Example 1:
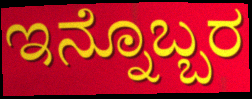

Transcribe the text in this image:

ಇನ್ನೊಬ್ಬರ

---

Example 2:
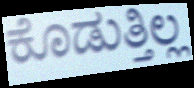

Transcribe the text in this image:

ಕೊಡುತ್ತಿಲ್ಲ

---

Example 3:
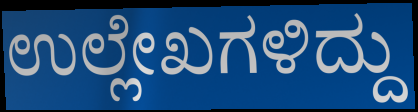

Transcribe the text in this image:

ಉಲ್ಲೇಖಗಳಿದ್ದು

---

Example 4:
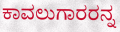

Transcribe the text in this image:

ಕಾವಲುಗಾರರನ್ನ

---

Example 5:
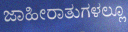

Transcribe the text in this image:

ಜಾಹೀರಾತುಗಳಲ್ಲೂ